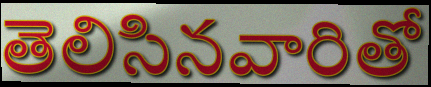
తెలిసినవారితో